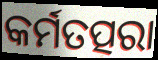
କର୍ମତତ୍ପରା